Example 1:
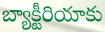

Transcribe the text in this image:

బ్యాక్టీరియాకు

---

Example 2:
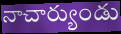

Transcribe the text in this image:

నాచార్యుండు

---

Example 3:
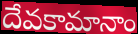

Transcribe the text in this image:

దేవకామానాం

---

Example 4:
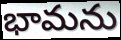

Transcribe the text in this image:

భామను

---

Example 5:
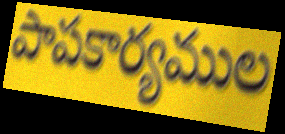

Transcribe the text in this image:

పాపకార్యముల